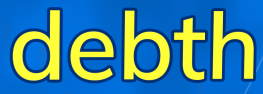
debth